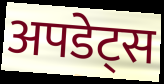
अपडेट्स